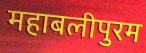
महाबलीपुरम